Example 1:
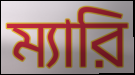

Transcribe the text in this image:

ম্যারি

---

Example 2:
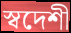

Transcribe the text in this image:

স্বদেশী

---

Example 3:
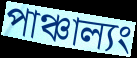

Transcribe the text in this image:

পাঞ্চাল্যং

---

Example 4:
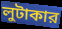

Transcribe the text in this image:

লুটাকার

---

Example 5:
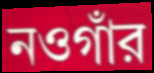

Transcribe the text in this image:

নওগাঁর